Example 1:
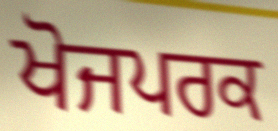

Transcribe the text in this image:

ਖੋਜਪਰਕ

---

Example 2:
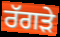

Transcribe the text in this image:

ਰੱਗੜੇ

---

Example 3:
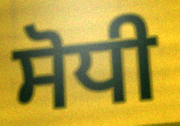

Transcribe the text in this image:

ਸੋਧੀ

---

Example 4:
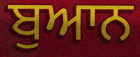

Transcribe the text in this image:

ਬੁਆਨ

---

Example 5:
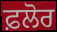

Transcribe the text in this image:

ਫ਼ਲੋਰ